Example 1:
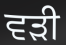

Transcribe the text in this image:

ਵੜੀ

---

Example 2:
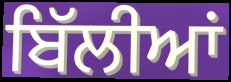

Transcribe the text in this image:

ਬਿੱਲੀਆਂ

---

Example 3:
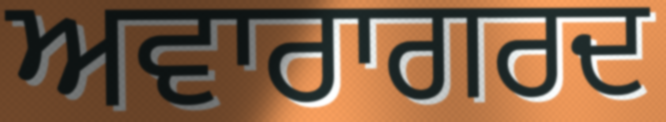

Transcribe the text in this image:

ਅਵਾਰਾਗਰਦ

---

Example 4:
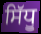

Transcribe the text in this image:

ਸਿੱਧੂ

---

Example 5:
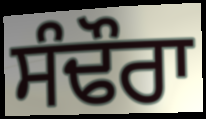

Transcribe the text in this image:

ਸੰਢੌਰਾ